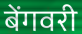
बेंगवरी